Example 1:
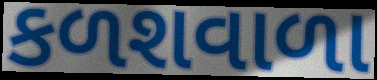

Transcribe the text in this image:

કળશવાળા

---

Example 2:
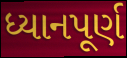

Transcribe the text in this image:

ધ્યાનપૂર્ણ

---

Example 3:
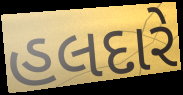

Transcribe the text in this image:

હલદારે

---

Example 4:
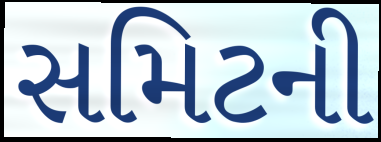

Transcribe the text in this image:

સમિટની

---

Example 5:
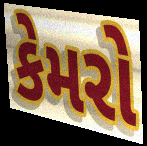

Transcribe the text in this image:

કેમરો